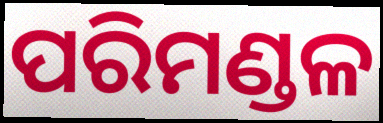
ପରିମଣ୍ଡଳ